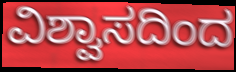
ವಿಶ್ವಾಸದಿಂದ